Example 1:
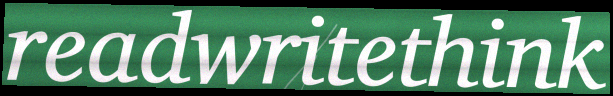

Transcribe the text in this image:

readwritethink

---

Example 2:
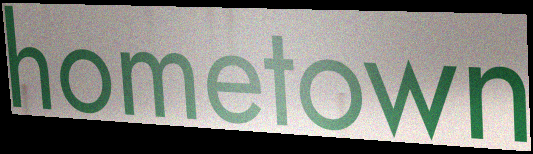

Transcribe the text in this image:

hometown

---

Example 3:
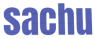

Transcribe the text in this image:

sachu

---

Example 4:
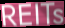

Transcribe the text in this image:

REITs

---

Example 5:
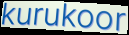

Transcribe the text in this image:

kurukoor